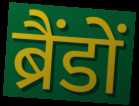
ब्रैंडों